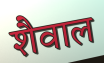
शैवाल